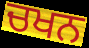
ਚਖਨ